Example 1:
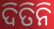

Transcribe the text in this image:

ଦିତିନି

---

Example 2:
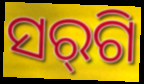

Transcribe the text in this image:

ସର୍‌ଗି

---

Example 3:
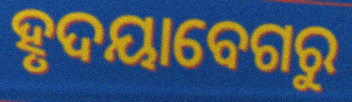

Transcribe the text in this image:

ହୃଦୟାବେଗରୁ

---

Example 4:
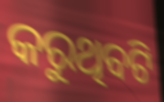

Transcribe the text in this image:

କରୁଥିବଟି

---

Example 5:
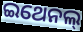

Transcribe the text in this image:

ଇଥେନଲ୍